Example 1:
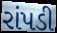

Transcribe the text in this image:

રાંપડી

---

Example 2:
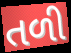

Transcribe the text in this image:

તળી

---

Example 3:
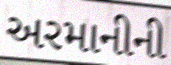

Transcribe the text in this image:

અરમાનીની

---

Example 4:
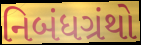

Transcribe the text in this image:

નિબંધગ્રંથો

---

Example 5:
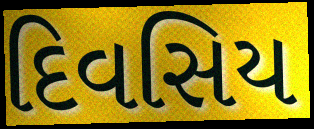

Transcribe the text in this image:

દિવસિય